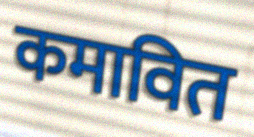
कमावित